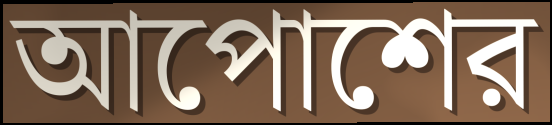
আপোশের